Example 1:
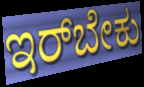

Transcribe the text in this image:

ಇರ್‌ಬೇಕು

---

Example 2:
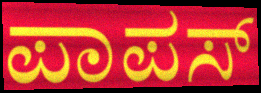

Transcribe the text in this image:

ಪಾಪಸ್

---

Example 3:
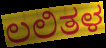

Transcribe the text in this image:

ಲಲಿತಳ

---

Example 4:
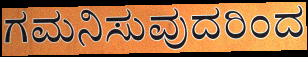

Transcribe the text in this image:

ಗಮನಿಸುವುದರಿಂದ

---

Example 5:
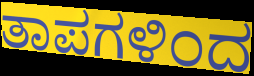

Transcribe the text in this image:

ತಾಪಗಳಿಂದ